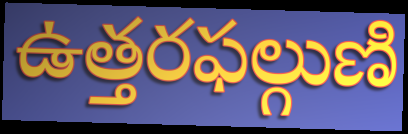
ఉత్తరఫల్గుణి